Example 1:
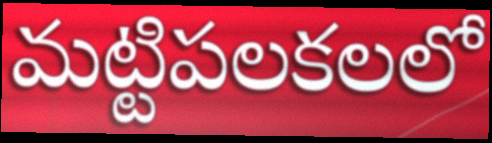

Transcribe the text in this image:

మట్టిపలకలలో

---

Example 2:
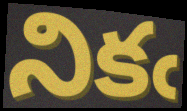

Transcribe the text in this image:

నికఁ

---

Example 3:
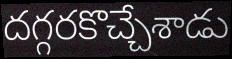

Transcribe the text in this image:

దగ్గరకొచ్చేశాడు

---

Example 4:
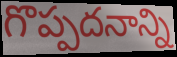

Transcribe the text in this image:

గొప్పదనాన్ని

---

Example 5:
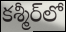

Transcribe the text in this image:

కశ్మీర్‌లో